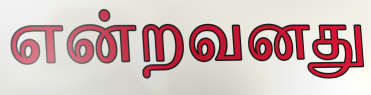
என்றவனது